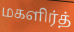
மகளிர்த்